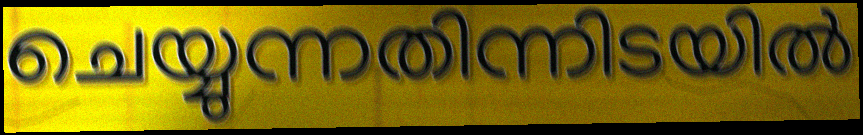
ചെയ്യുന്നതിന്നിടയിൽ